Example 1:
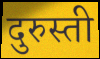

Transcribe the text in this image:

दुरुस्ती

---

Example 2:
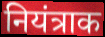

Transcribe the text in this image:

नियंत्राक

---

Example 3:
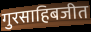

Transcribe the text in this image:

गुरसाहिबजीत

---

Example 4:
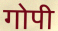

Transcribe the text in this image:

गोपी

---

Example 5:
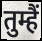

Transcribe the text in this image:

तुम्हैं